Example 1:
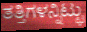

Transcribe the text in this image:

ತತ್ತಿಗಳನ್ನಿಟ್ಟು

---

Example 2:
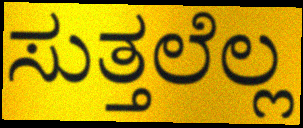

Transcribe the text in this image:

ಸುತ್ತಲೆಲ್ಲ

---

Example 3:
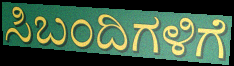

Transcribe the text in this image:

ಸಿಬಂದಿಗಳಿಗೆ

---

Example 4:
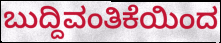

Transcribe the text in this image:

ಬುದ್ದಿವಂತಿಕೆಯಿಂದ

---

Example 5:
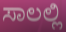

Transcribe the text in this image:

ಸಾಲಲ್ಲಿ